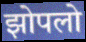
झोपलो